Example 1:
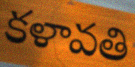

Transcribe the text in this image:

కళావతి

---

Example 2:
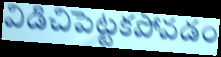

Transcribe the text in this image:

విడిచిపెట్టకపోవడం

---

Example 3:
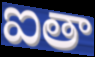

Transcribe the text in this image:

ఐతా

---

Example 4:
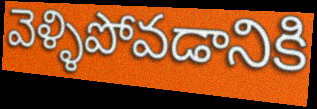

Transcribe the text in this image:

వెళ్ళిపోవడానికి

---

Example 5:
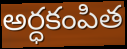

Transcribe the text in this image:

అర్ధకంపిత